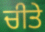
ਚੀਤੇ